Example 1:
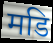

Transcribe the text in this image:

मडि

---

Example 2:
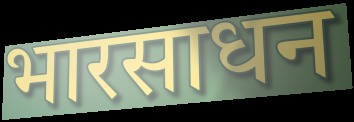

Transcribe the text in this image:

भारसाधन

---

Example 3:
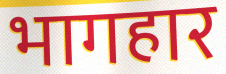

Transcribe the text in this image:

भागहार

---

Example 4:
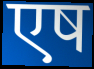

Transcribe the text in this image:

एष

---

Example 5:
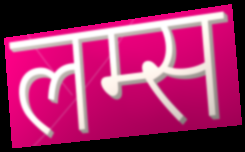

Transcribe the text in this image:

लम्स